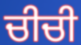
ਚੀਚੀ